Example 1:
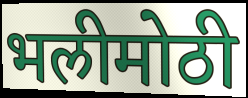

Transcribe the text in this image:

भलीमोठी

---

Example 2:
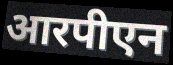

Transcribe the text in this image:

आरपीएन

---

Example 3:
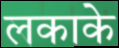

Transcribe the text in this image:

लकाके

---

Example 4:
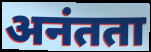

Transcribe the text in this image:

अनंतता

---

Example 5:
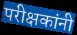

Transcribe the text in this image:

परीक्षकांनी